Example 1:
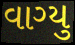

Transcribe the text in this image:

વાગ્યુ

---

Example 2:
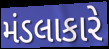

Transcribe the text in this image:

મંડલાકારે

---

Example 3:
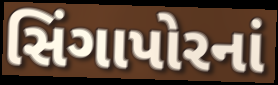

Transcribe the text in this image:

સિંગાપોરનાં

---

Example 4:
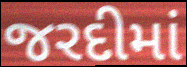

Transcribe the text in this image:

જરદીમાં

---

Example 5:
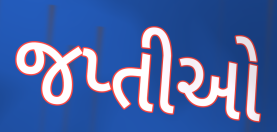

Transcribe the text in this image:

જપ્તીઓ